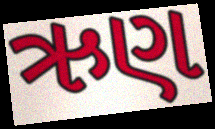
ઋણ